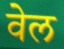
वेल